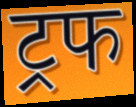
ट्रफ